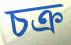
চক্ৰ